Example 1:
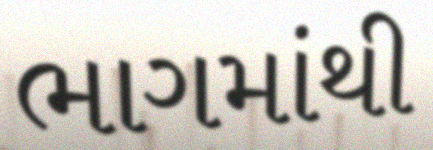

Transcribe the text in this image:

ભાગમાંથી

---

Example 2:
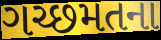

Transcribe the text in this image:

ગચ્છમતના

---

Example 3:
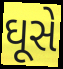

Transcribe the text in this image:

ઘૂસે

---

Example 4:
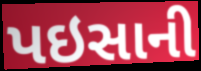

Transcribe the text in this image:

પઇસાની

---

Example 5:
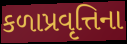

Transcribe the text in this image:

કળાપ્રવૃત્તિના